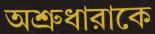
অশ্রুধারাকে